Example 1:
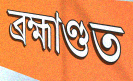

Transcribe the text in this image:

ব্ৰহ্মাণ্ডত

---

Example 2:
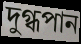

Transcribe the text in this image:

দুগ্ধপান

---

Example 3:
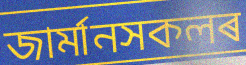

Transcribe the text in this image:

জাৰ্মানসকলৰ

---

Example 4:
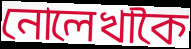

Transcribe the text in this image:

নোলেখাকৈ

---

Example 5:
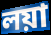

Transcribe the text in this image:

লয়া